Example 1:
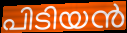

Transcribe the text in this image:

പിടിയൻ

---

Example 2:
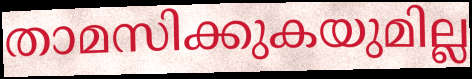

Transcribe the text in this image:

താമസിക്കുകയുമില്ല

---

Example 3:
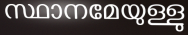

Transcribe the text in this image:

സ്ഥാനമേയുള്ളു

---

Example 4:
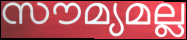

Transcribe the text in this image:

സൗമ്യമല്ല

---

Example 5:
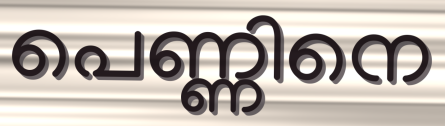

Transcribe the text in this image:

പെണ്ണിനെ